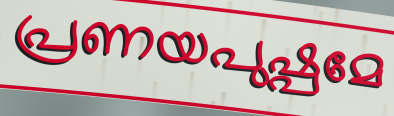
പ്രണയപുഷ്പമേ